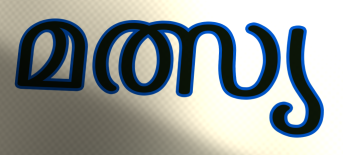
മത്സ്യ